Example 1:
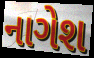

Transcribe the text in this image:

નાગેશ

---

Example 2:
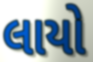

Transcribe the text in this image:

લાયો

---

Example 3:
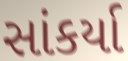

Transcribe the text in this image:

સાંકર્યા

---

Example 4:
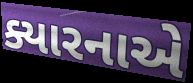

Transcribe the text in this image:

ક્યારનાએ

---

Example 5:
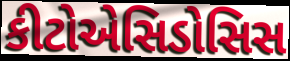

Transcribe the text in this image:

કીટોએસિડોસિસ